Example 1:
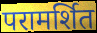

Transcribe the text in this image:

परामर्शित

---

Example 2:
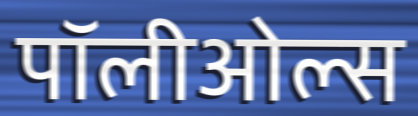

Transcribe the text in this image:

पॉलीओल्स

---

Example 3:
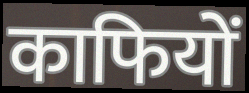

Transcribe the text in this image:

काफियों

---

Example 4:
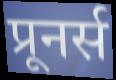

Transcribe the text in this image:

प्रूनर्स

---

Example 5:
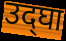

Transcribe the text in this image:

उद्घा